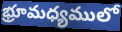
భ్రూమధ్యములో